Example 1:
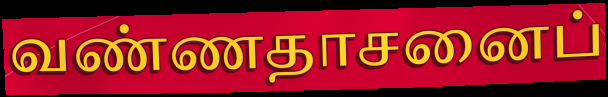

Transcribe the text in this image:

வண்ணதாசனைப்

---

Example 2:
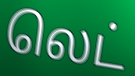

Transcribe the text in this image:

லெட்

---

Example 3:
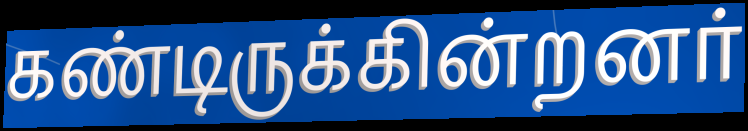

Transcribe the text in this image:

கண்டிருக்கின்றனர்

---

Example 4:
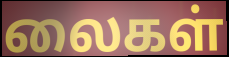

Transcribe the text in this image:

லைகள்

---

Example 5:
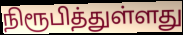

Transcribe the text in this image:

நிரூபித்துள்ளது